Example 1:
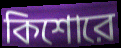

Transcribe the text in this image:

কিশোরে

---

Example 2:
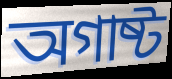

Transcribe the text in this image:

অগাষ্ট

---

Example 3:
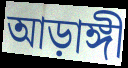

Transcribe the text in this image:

আড়াঙ্গী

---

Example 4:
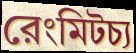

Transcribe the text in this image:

রেংমিটচ্য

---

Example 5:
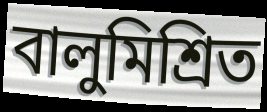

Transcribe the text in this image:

বালুমিশ্রিত